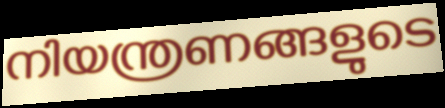
നിയന്ത്രണങ്ങളുടെ